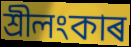
শ্ৰীলংকাৰ